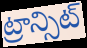
ట్రాన్సిట్